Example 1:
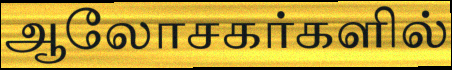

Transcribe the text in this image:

ஆலோசகர்களில்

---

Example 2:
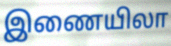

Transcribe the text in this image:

இணையிலா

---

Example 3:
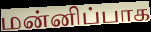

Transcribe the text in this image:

மன்னிப்பாக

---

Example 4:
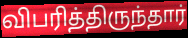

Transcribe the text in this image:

விபரித்திருந்தார்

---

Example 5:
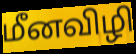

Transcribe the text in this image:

மீனவிழி